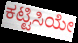
ಕಟ್ಟಿಸಿಯೇ